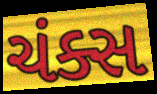
ચંક્સ